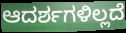
ಆದರ್ಶಗಳಿಲ್ಲದೆ